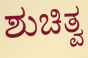
ಶುಚಿತ್ವ